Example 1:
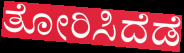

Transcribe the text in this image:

ತೋರಿಸಿದೆಡೆ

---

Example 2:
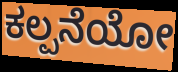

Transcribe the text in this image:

ಕಲ್ಪನೆಯೋ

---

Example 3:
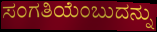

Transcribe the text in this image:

ಸಂಗತಿಯೆಂಬುದನ್ನು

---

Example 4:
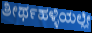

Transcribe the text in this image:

ತೀರ್ಥಹಳ್ಳಿಯಲ್ಲೇ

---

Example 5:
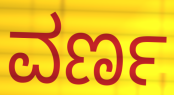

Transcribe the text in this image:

ವರ್ಣ